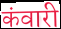
कंवारी